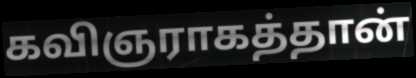
கவிஞராகத்தான்